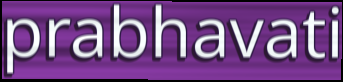
prabhavati